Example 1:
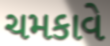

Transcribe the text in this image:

ચમકાવે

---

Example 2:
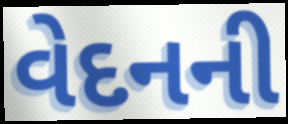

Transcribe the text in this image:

વેદનની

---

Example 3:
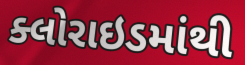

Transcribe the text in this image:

ક્લોરાઇડમાંથી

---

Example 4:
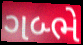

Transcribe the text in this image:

ગબ્ભે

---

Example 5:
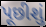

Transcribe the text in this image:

પૂછીશું